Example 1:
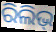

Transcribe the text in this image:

ରିଲିଭ୍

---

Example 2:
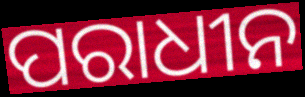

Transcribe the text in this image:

ପରାଧୀନ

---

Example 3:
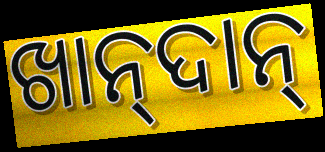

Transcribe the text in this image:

ଖାନ୍‍ଦାନ୍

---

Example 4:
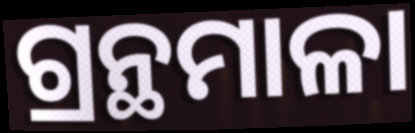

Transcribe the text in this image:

ଗ୍ରନ୍ଥମାଳା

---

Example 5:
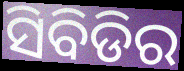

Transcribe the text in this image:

ସିବିଡିର